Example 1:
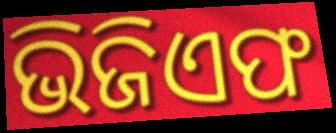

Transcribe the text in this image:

ଭିଜିଏଫ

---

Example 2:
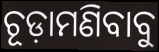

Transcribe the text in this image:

ଚୂଡ଼ାମଣିବାବୁ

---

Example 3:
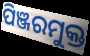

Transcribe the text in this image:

ପିଞ୍ଜରମୁକ୍ତ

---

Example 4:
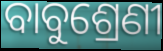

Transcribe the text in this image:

ବାବୁଶ୍ରେଣୀ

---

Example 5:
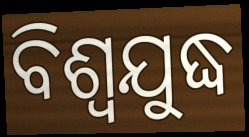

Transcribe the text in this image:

ବିଶ୍ୱଯୁଦ୍ଧ